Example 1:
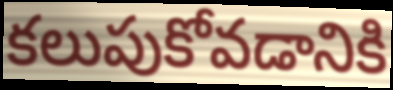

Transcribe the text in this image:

కలుపుకోవడానికి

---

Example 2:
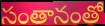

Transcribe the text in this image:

సంతానంతో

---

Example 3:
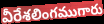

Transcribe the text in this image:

వీరేశలింగముగారు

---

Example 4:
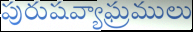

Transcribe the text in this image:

పురుషవ్యాఘ్రములు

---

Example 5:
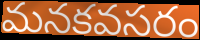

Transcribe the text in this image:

మనకవసరం